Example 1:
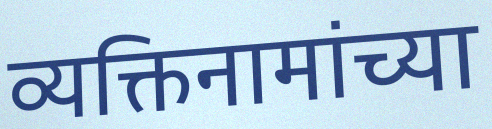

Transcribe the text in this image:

व्यक्तिनामांच्या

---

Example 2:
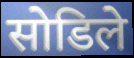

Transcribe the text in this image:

सोडिले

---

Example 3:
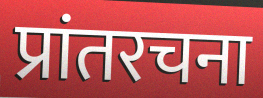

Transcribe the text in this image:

प्रांतरचना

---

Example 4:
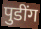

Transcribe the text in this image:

पुडींग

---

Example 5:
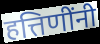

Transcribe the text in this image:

हत्तिणींनी